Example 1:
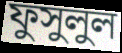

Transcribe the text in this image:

ফুসুলুল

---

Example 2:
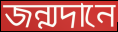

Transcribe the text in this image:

জন্মদানে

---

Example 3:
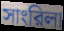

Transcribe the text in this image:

সাংরিলা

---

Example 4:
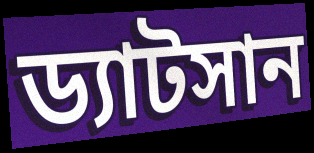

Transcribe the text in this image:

ড্যাটসান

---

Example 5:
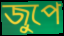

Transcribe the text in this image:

জুপে